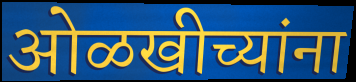
ओळखीच्यांना